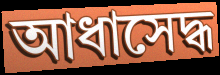
আধাসেদ্ধ